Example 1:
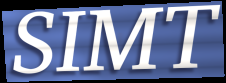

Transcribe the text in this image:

SIMT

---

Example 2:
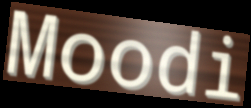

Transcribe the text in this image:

Moodi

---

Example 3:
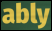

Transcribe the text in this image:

ably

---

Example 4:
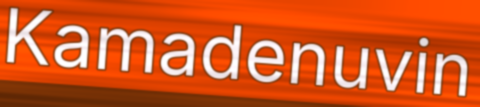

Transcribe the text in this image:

Kamadenuvin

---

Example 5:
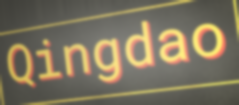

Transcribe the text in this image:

Qingdao